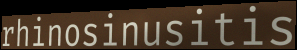
rhinosinusitis